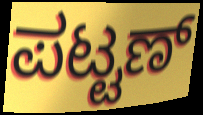
ಪಟ್ಟಣ್